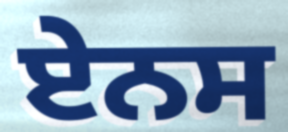
ਏਨਸ